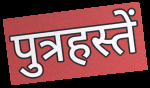
पुत्रहस्तें